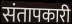
संतापकारी